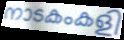
നാടകംകളി